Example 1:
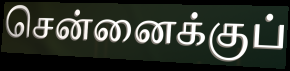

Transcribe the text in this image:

சென்னைக்குப்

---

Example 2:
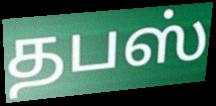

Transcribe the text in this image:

தபஸ்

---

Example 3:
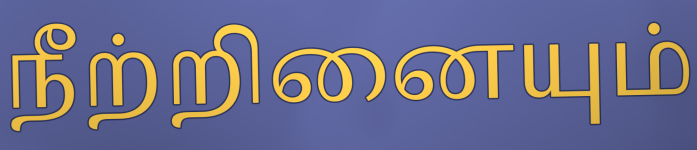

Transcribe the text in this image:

நீற்றினையும்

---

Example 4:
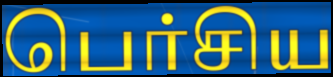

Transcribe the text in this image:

பெர்சிய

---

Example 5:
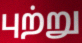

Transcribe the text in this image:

புற்று